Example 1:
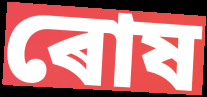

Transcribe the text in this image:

ৰোষ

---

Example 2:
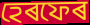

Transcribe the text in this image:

হেৰফেৰ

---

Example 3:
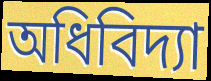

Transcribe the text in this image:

অধিবিদ্যা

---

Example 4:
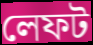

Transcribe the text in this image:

লেফট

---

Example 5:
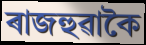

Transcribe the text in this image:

ৰাজহুৱাকৈ